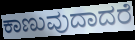
ಕಾಣುವುದಾದರೆ